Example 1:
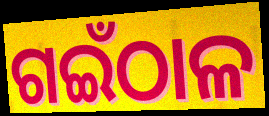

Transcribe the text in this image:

ଗଇଁଠାଳ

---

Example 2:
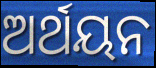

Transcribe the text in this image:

ଅର୍ଥୟନ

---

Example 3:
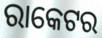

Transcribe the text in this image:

ରାକେଟର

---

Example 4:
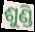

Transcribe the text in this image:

ଶୁଣ୍ଡି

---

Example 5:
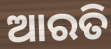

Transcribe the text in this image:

ଆରତି